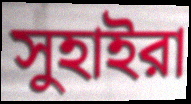
সুহাইরা